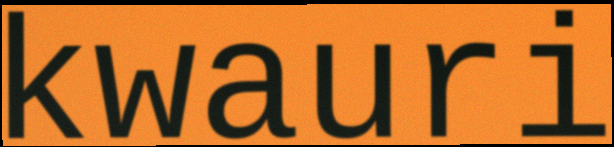
kwauri